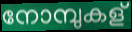
നോമ്പുകള്